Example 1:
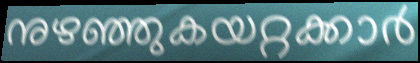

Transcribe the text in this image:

നുഴഞ്ഞുകയറ്റക്കാർ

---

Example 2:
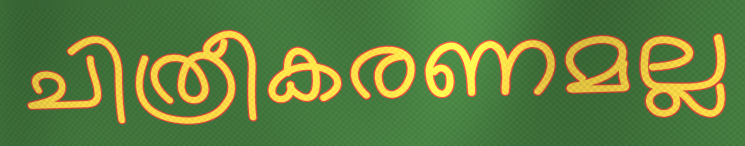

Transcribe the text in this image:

ചിത്രീകരണമല്ല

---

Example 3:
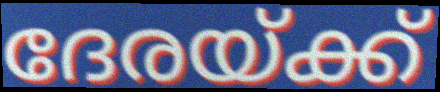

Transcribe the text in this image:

ദേരയ്ക്ക്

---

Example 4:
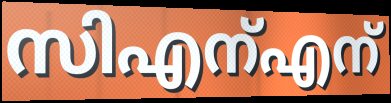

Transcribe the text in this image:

സിഎന്എന്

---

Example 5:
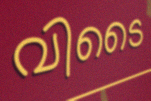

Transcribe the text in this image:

വിടൈ